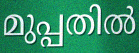
മുപ്പതിൽ